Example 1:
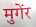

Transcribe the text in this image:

मुगेंर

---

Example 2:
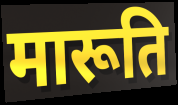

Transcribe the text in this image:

मारूति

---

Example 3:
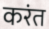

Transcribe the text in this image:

करंत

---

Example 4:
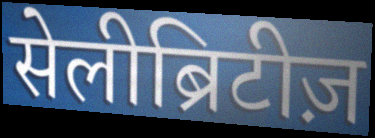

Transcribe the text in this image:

सेलीब्रिटीज़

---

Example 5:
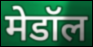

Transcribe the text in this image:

मेडॉल